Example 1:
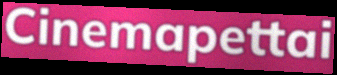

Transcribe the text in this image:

Cinemapettai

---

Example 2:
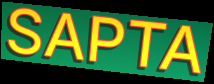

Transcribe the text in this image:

SAPTA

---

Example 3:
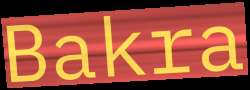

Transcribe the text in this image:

Bakra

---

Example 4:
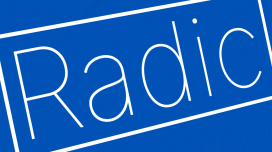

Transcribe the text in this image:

Radic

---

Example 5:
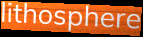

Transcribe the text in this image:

lithosphere